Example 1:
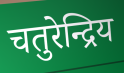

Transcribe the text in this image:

चतुरेन्द्रिय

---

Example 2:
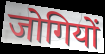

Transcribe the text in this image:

जोगियों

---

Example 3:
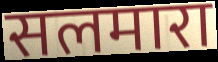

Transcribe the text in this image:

सलमारा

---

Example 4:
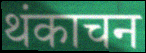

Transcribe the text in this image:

थंकाचन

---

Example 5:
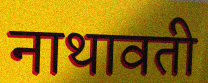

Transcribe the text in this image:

नाथावती